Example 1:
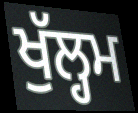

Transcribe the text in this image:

ਖੁੱਲ੍ਹਮ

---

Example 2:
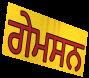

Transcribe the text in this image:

ਗੇਮਸਨ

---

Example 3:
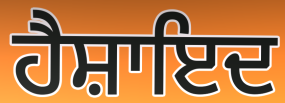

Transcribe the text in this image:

ਹੈਸ਼ਾਇਦ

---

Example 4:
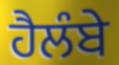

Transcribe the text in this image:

ਹੈਲੰਬੇ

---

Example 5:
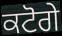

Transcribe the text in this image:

ਕਟੋਗੇ